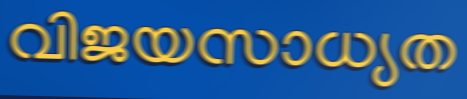
വിജയസാധ്യത